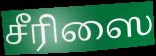
சீரிஸை